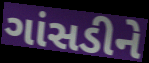
ગાંસડીને